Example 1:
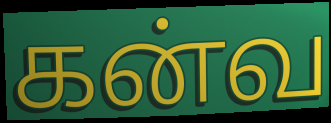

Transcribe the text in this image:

கன்வ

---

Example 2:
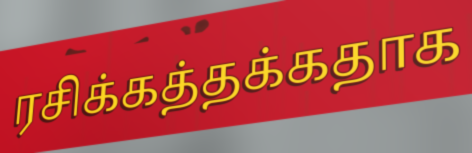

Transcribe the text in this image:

ரசிக்கத்தக்கதாக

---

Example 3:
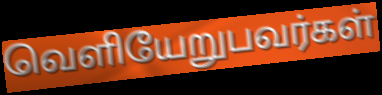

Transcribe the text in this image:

வெளியேறுபவர்கள்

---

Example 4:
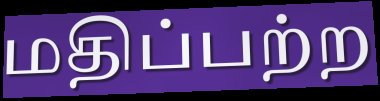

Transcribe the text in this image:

மதிப்பற்ற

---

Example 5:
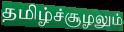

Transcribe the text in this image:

தமிழ்ச்சூழலும்